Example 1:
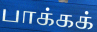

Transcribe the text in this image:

பாக்கக்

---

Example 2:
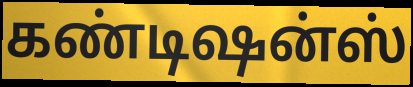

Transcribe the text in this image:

கண்டிஷன்ஸ்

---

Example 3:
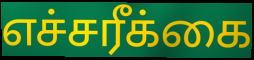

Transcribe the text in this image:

எச்சரீக்கை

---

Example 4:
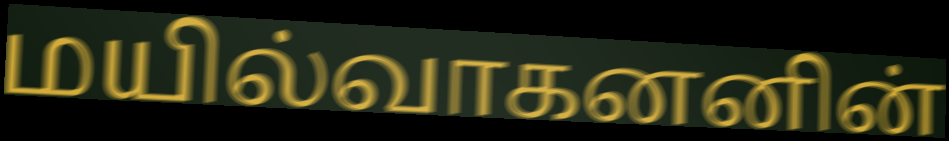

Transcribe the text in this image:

மயில்வாகனனின்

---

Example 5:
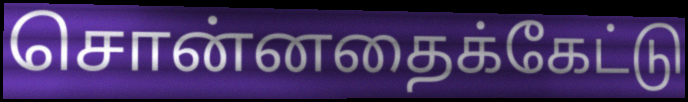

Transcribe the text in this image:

சொன்னதைக்கேட்டு